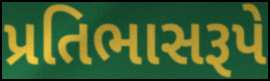
પ્રતિભાસરૂપે